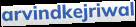
arvindkejriwal